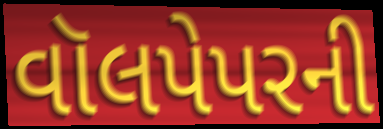
વૉલપેપરની